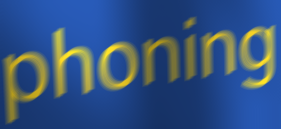
phoning